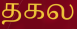
தகல